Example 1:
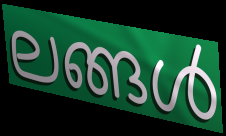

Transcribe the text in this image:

ലങ്ങൾ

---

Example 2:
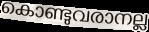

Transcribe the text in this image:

കൊണ്ടുവരാനല്ല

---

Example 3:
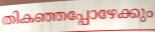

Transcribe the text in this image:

തികഞ്ഞപ്പോഴേക്കും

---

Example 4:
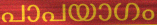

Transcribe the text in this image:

പാപയാഗം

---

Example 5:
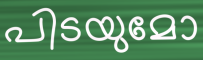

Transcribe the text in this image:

പിടയുമോ